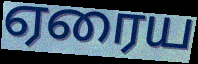
ஏரைய